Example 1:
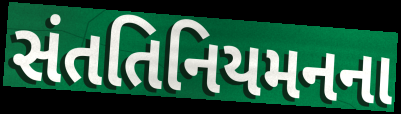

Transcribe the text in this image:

સંતતિનિયમનના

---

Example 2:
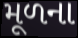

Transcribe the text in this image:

મૂળના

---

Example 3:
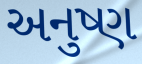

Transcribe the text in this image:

અનુષ્ણ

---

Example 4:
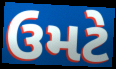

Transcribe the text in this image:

ઉમટે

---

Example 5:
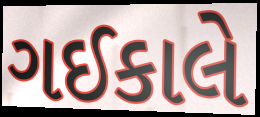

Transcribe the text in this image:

ગઈકાલે